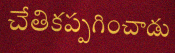
చేతికప్పగించాడు